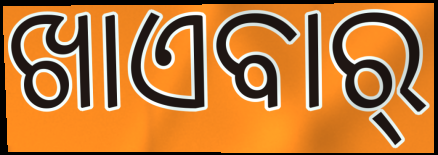
ଖାଏବାର୍